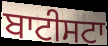
ਬਾਟੀਸਟਾ